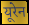
यूरेन